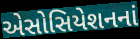
એસોસિયેશનનાં